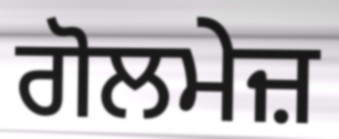
ਗੋਲਮੇਜ਼